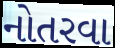
નોતરવા